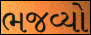
ભજવ્યો